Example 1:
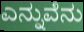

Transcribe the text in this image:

ಎನ್ನುವೆನು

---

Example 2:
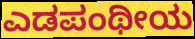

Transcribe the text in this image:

ಎಡಪಂಥೀಯ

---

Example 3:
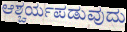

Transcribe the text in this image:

ಆಶ್ಚರ್ಯಪಡುವುದು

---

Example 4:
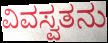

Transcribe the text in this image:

ವಿವಸ್ವತನು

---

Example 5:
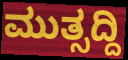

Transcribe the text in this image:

ಮುತ್ಸದ್ದಿ